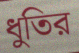
ধুতির